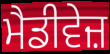
ਮੈਡੀਵੇਜ਼